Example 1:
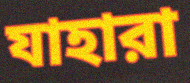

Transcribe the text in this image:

যাহারা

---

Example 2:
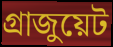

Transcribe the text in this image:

গ্রাজুয়েট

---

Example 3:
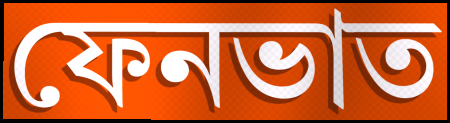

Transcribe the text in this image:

ফেনভাত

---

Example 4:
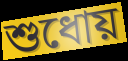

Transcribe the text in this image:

শুধোয়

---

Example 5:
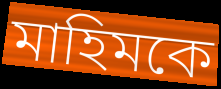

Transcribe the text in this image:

মাহিমকে